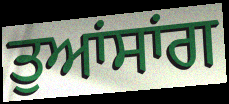
ਤੁਆਂਸਾਂਗ